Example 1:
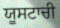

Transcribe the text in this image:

ਯੂਸਟਾਚੀ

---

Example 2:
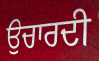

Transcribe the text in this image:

ਉਚਾਰਦੀ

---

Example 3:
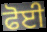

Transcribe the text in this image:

ਫੋਈ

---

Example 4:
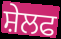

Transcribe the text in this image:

ਸ਼ੇਲਫ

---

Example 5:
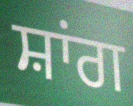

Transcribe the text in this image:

ਸ਼ਾਂਗ